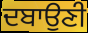
ਦਬਾਉਣੀ